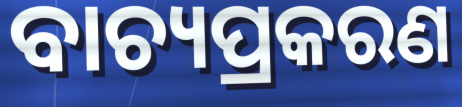
ବାଚ୍ୟପ୍ରକରଣ